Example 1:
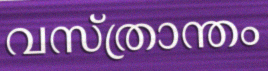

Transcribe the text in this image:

വസ്ത്രാന്തം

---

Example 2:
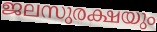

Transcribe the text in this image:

ജലസുരക്ഷയും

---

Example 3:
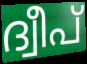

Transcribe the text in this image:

ദ്വീപ്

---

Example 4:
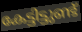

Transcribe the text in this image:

കേട്ടിട്ടുണ്ട്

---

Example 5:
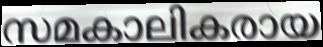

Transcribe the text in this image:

സമകാലികരായ